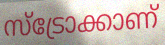
സ്ട്രോക്കാണ്